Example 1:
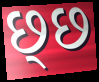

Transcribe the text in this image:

છ્છ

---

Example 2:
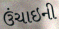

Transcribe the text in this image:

ઉંચાઇની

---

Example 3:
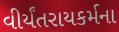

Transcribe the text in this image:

વીર્યંતરાયકર્મના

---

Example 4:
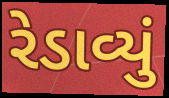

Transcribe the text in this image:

રેડાવ્યું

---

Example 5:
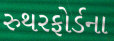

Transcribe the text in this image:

રુથરફોર્ડના